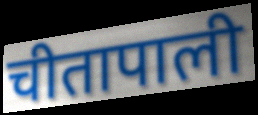
चीतापाली